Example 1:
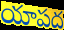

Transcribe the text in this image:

యాపద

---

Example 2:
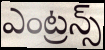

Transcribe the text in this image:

ఎంట్రన్స్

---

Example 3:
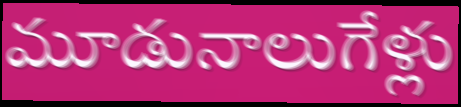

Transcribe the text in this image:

మూడునాలుగేళ్లు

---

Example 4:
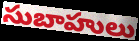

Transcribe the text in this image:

సుబాహులు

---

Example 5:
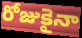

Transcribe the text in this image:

రోజుకైనా